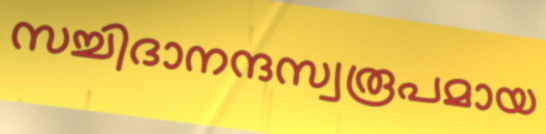
സച്ചിദാനന്ദസ്വരൂപമായ